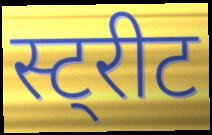
स्ट्रीट